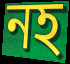
নহ